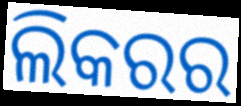
ଲିକରର